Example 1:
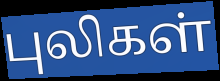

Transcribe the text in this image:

புலிகள்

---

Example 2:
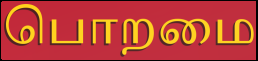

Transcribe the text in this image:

பொறமை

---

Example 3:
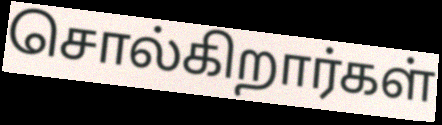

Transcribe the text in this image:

சொல்கிறார்கள்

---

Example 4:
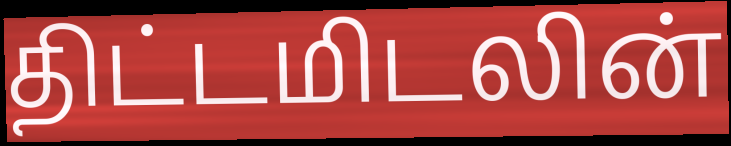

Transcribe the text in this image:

திட்டமிடலின்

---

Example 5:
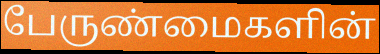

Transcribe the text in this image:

பேருண்மைகளின்